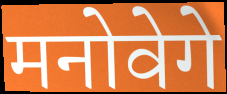
मनोवेगे